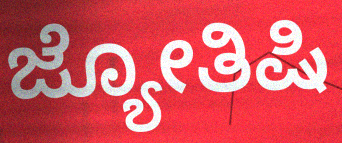
ಜ್ಯೋತಿಷಿ